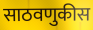
साठवणुकीस